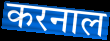
करनाल